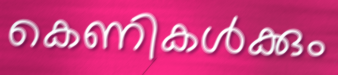
കെണികൾക്കും